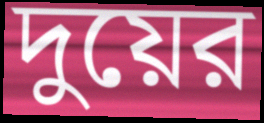
দুয়ের